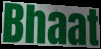
Bhaat